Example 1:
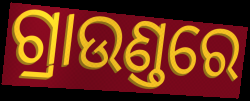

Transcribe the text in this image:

ଗ୍ରାଉଣ୍ଡରେ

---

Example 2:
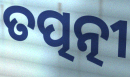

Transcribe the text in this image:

ତତ୍ପତ୍ନୀ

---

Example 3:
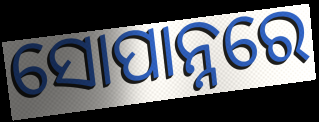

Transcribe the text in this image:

ସୋପାନ୍ନରେ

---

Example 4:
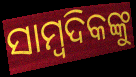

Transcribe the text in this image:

ସାମ୍ବଦିକଙ୍କୁ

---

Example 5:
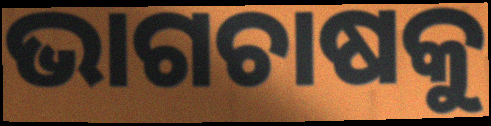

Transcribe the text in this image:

ଭାଗଚାଷକୁ